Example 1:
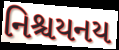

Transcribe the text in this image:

નિશ્ચયનય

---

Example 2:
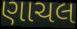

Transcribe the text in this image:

ણાચલ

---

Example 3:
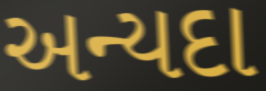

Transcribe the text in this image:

અન્યદા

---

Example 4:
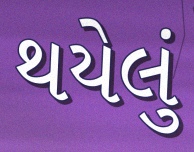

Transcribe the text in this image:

થયેલું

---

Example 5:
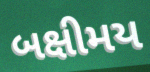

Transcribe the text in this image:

બક્ષીમય